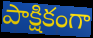
పాక్షికంగా